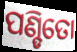
ପଣ୍ଡିତୋ